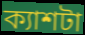
ক্যাশটা